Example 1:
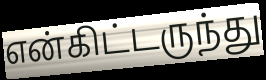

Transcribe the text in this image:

என்கிட்டருந்து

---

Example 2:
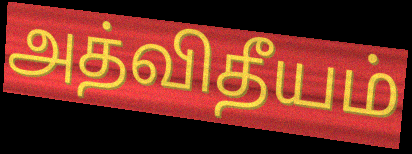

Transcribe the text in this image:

அத்விதீயம்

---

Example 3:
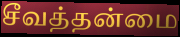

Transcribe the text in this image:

சீவத்தன்மை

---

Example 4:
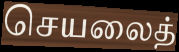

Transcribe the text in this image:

செயலைத்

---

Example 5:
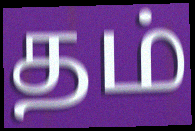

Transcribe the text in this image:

தம்